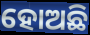
ହୋଅଛି